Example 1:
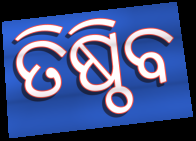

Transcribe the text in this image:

ତିଷ୍ଠିବ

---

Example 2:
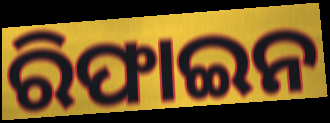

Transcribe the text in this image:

ରିଫାଇନ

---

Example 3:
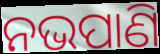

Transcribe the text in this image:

ନଭପାଣି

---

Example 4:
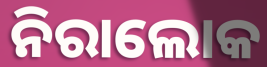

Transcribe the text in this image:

ନିରାଲୋକ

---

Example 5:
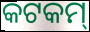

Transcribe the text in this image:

କଟକମ୍